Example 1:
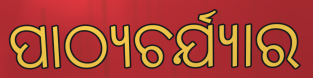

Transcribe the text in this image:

ପାଠ୍ୟଚର୍ଯ୍ୟାର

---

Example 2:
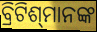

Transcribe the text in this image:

ବ୍ରିଟିଶ୍‌ମାନଙ୍କ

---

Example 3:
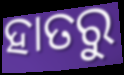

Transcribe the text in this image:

ହାତରୁ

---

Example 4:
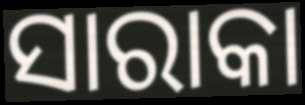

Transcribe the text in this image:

ସାରାକା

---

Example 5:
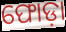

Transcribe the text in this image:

ଫୋଡ଼ା